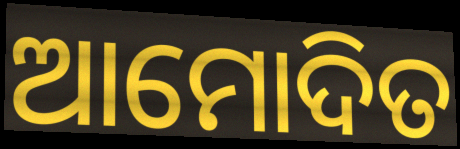
ଆମୋଦିତ